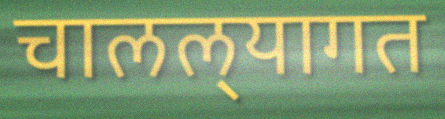
चालल्यागत